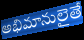
అభిమానులైతే